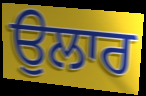
ਉਲਾਰ